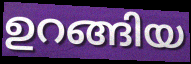
ഉറങ്ങിയ